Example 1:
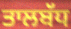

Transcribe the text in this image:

ਤਾਲਬੱਧ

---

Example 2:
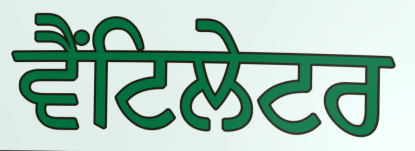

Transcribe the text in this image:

ਵੈਂਟਿਲੇਟਰ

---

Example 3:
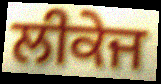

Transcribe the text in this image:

ਲੀਕੇਜ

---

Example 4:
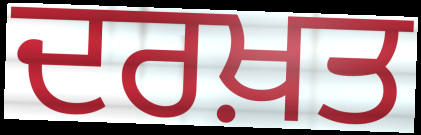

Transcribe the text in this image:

ਦਰਖ਼ਤ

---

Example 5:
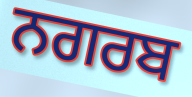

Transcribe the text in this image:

ਨਗਰਬ